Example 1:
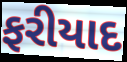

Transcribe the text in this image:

ફરીયાદ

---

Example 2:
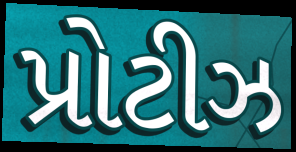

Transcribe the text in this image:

પ્રોટીઝ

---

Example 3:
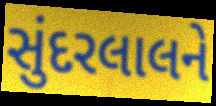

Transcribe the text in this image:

સુંદરલાલને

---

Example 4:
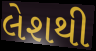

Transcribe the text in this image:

લેશથી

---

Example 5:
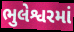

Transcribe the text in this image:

ભુલેશ્વરમાં